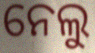
ନେଲୁ